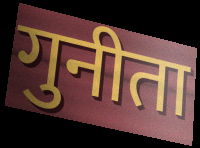
गुनीता